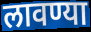
लावण्या